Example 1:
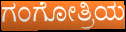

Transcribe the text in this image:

ಗಂಗೋತ್ರಿಯ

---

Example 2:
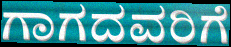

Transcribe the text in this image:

ಗಾಗದವರಿಗೆ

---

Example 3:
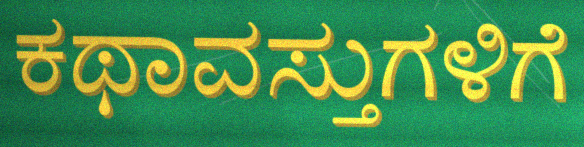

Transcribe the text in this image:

ಕಥಾವಸ್ತುಗಳಿಗೆ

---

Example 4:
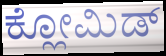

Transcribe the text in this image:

ಕ್ಲೋಮಿಡ್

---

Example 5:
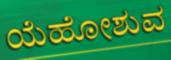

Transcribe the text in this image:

ಯೆಹೋಶುವ